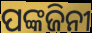
ପଙ୍କଜିନୀ